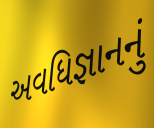
અવધિજ્ઞાનનું